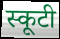
स्कूटी